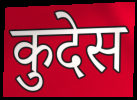
कुदेस